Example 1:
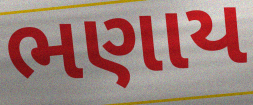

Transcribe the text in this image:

ભણાય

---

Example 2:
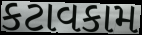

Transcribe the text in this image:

કટાવકામ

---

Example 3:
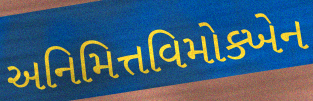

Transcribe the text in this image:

અનિમિત્તવિમોક્ખેન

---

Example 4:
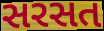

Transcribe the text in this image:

સરસત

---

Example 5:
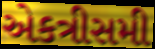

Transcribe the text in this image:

એકત્રીસમી